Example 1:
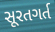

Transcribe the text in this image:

સૂરતગર્ત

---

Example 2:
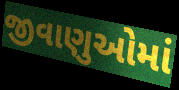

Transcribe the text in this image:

જીવાણુઓમાં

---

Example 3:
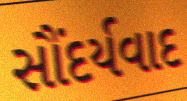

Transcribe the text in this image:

સૌંદર્યવાદ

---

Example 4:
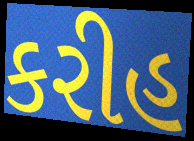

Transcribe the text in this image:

કરીહ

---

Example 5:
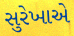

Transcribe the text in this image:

સુરેખાએ